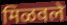
मिळवले